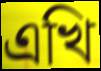
এখি